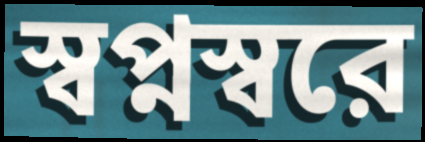
স্বপ্নস্বরে